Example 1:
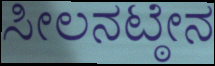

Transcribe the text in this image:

ಸೀಲನಟ್ಠೇನ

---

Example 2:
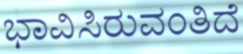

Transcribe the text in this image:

ಭಾವಿಸಿರುವಂತಿದೆ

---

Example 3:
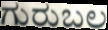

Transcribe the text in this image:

ಗುರುಬಲ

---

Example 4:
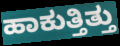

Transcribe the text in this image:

ಹಾಕುತ್ತಿತ್ತು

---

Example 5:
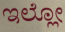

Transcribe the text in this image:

ಇಲ್ಲೋ